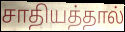
சாதியத்தால்